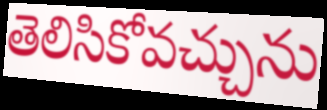
తెలిసికోవచ్చును